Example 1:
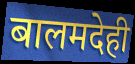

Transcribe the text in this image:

बालमदेही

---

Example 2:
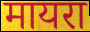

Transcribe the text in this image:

मायरा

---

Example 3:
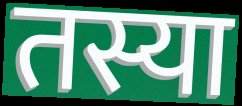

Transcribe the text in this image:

तस्या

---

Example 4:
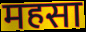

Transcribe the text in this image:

महसा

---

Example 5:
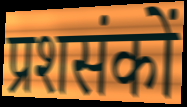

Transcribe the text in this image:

प्रशसंकों